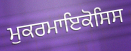
ਮੁਕਰਮਾਇਕੋਸਿਸ